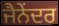
ਜੈਨੇਂਦਰ